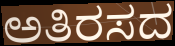
ಅತಿರಸದ